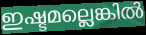
ഇഷ്ടമല്ലെങ്കിൽ